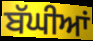
ਬੱਘੀਆਂ